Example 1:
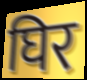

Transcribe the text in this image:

घिर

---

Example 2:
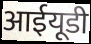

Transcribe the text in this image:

आईयूडी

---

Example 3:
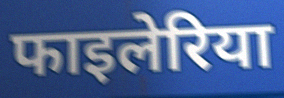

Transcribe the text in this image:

फाइलेरिया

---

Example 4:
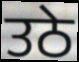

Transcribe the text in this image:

उठे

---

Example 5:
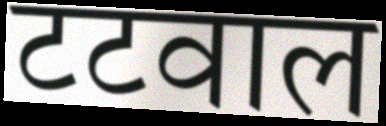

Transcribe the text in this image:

टटवाल